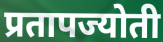
प्रतापज्योती